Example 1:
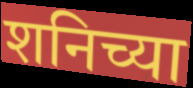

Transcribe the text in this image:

शनिच्या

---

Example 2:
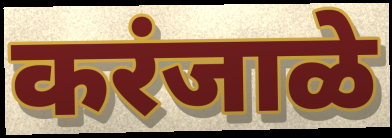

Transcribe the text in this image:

करंजाळे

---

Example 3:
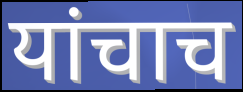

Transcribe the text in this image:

यांचाच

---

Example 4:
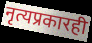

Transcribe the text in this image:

नृत्यप्रकारही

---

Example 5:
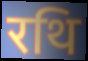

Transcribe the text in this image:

रथि